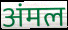
अंमल